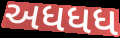
અધધધ